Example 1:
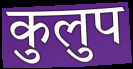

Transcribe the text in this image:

कुलुप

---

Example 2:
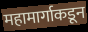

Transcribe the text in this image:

महामार्गाकडून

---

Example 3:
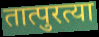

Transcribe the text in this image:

तात्पुरत्या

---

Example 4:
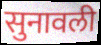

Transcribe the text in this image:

सुनावली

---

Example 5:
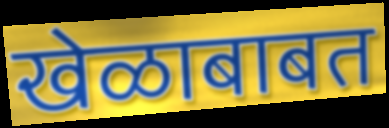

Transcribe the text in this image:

खेळाबाबत